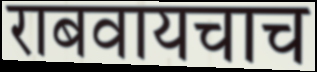
राबवायचाच